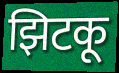
झिटकू